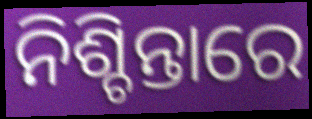
ନିଶ୍ଚିନ୍ତାରେ